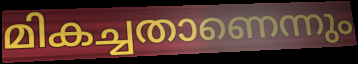
മികച്ചതാണെന്നും